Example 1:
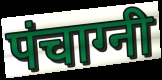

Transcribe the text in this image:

पंचाग्नी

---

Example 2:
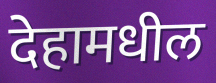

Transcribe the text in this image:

देहामधील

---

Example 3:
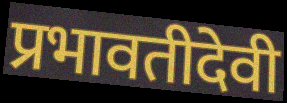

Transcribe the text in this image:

प्रभावतीदेवी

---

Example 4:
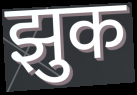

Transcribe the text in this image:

झुक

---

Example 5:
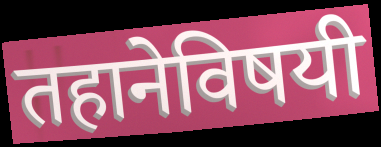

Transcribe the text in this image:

तहानेविषयी